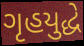
ગૃહયુદ્ધે